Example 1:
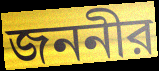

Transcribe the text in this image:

জননীর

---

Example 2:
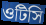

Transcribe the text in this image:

ওটিসি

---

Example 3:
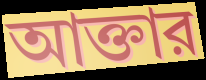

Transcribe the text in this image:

আক্তার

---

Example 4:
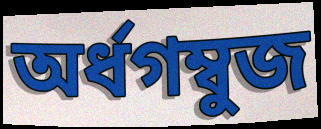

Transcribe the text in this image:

অর্ধগম্বুজ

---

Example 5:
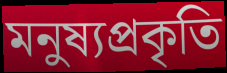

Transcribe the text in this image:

মনুষ্যপ্রকৃতি